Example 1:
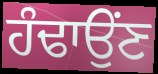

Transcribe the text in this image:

ਹੰਢਾਉਂਣ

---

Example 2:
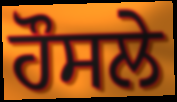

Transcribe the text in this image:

ਹੌਸਲੇ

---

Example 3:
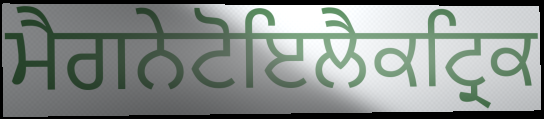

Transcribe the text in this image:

ਮੈਗਨੇਟੋਇਲੈਕਟ੍ਰਿਕ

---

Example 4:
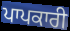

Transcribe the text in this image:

ਪਾਪਕਾਰੀ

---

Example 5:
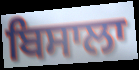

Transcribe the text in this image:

ਬਿਸਾਲਾ